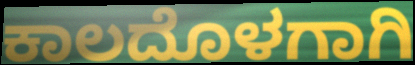
ಕಾಲದೊಳಗಾಗಿ